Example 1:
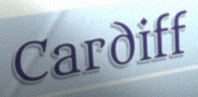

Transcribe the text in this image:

Cardiff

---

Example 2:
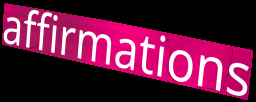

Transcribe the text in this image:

affirmations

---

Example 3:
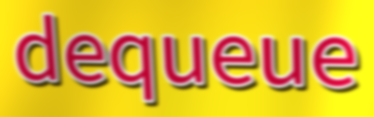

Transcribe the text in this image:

dequeue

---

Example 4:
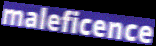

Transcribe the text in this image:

maleficence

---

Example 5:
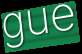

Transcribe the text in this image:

gue